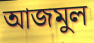
আজমুল